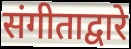
संगीताद्वारे